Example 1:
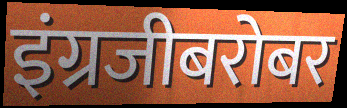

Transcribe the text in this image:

इंग्रजीबरोबर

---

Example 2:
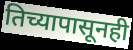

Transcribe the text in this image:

तिच्यापासूनही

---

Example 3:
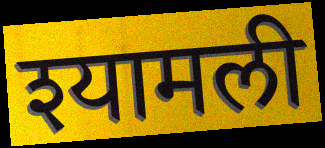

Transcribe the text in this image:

श्यामली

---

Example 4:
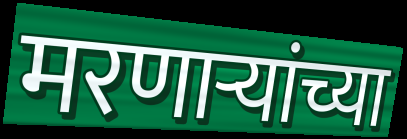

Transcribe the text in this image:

मरणाऱ्यांच्या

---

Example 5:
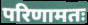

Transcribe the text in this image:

परिणामतः